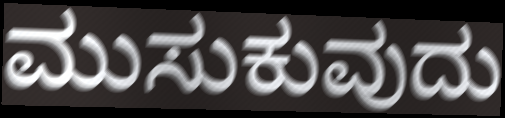
ಮುಸುಕುವುದು